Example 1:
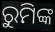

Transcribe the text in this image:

ରୁମିଙ୍କ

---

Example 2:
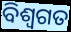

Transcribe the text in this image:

ବିଶ୍ଵଗତ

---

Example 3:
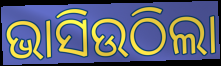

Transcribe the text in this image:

ଭାସିଉଠିଲା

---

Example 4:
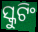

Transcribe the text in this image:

ସ୍କୁଟିଂ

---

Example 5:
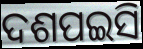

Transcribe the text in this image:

ଦଶପଇସି